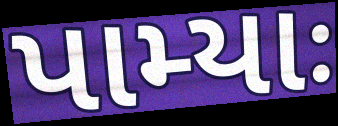
પામ્યાઃ